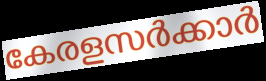
കേരളസർക്കാർ